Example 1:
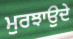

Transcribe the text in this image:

ਮੁਰਝਾਉਦੇ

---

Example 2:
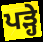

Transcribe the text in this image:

ਪਡ਼੍ਹੇ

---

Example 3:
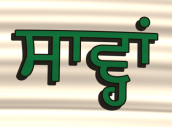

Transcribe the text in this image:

ਸਾਵ੍ਹਾਂ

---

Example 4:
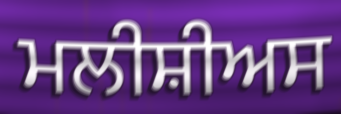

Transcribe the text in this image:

ਮਲੀਸ਼ੀਅਸ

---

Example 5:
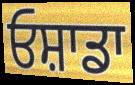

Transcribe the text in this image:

ਓਸ਼ਾਡਾ